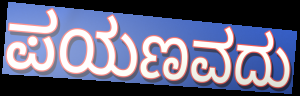
ಪಯಣವದು